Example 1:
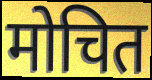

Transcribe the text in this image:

मोचित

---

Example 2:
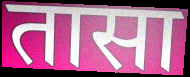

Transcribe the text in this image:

तासा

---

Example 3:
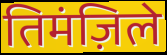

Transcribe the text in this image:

तिमंज़िले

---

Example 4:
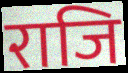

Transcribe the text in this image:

राजि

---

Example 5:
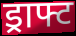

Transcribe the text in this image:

ड्राफ्ट